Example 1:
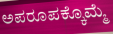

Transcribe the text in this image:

ಅಪರೂಪಕ್ಕೊಮ್ಮೆ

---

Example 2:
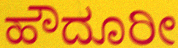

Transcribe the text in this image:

ಹೌದೂರೀ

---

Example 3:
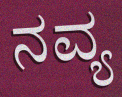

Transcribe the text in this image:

ನವ್ಯ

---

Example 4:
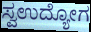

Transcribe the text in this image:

ಸ್ವಉದ್ಯೋಗ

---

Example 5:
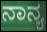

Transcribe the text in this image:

ನಾನ್ಯ